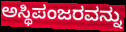
ಅಸ್ಥಿಪಂಜರವನ್ನು